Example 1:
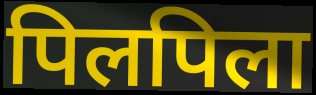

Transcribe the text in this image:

पिलपिला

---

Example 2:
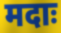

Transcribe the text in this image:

मदाः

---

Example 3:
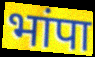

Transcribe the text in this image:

भांपा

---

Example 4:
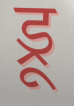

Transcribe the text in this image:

ड्रू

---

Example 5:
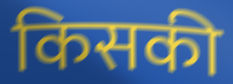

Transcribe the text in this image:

किसकी